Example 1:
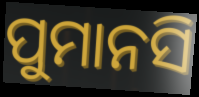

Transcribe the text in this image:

ପୁମାନସି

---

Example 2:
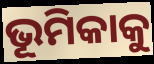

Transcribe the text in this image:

ଭୂମିକାକୁ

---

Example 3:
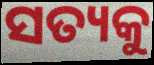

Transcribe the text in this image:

ସତ୍ୟକୁ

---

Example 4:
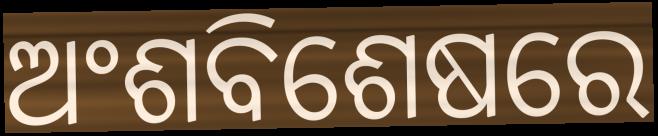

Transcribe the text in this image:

ଅଂଶବିଶେଷରେ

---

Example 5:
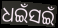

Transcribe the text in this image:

ଧଇଁସଇଁ